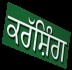
ਕਰੱਸ਼ਿੰਗ